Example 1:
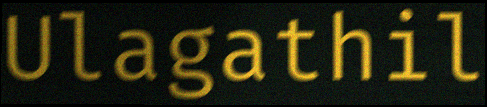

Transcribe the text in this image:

Ulagathil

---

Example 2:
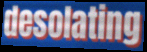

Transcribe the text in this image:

desolating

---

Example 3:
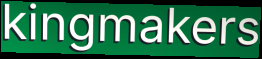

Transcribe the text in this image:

kingmakers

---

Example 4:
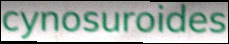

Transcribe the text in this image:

cynosuroides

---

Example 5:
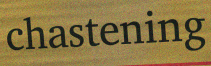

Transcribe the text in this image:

chastening